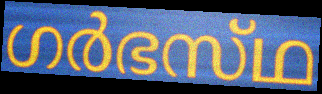
ഗർഭസ്‌ഥ